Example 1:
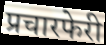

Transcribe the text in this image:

प्रचारफेरी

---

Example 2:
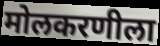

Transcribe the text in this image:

मोलकरणीला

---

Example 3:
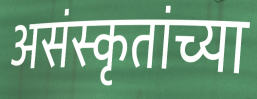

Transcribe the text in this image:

असंस्कृतांच्या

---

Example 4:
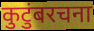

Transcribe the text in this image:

कुटुंबरचना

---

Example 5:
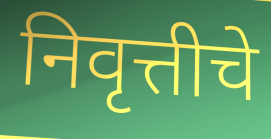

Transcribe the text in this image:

निवृत्तीचे